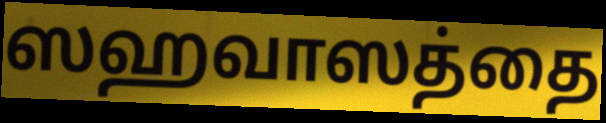
ஸஹவாஸத்தை